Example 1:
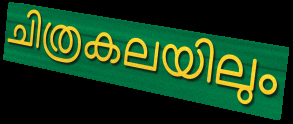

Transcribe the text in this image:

ചിത്രകലയിലും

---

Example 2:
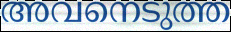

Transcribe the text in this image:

അവനെടുത്ത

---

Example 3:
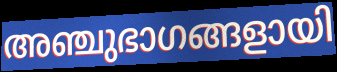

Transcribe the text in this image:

അഞ്ചുഭാഗങ്ങളായി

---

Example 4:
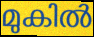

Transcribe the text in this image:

മുകിൽ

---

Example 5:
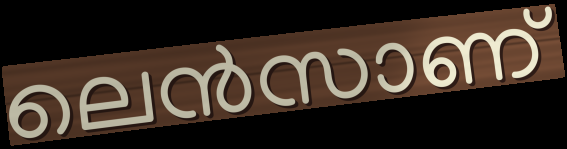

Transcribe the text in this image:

ലെൻസാണ്